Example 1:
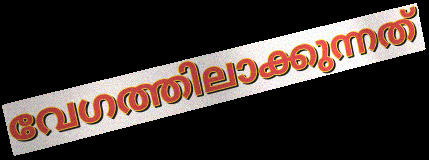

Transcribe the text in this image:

വേഗത്തിലാക്കുന്നത്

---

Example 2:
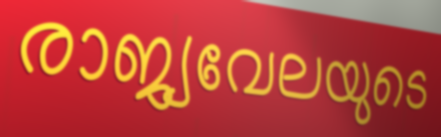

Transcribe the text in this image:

രാജ്യവേലയുടെ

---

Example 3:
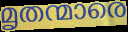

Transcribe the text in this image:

മൃതന്മാരെ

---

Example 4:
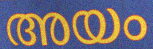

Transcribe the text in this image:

അയം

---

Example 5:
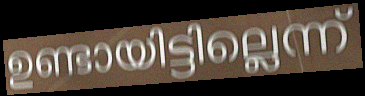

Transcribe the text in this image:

ഉണ്ടായിട്ടില്ലെന്ന്